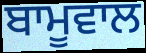
ਬਾਮੂਵਾਲ